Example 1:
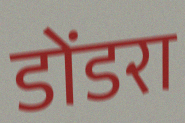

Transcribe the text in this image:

डोंडरा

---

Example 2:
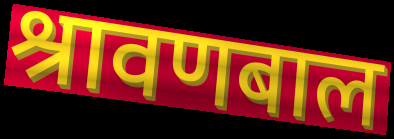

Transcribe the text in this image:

श्रावणबाल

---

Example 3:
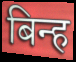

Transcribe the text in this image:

बिन्ह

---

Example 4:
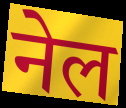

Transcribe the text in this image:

नेल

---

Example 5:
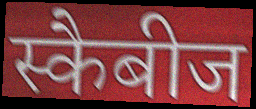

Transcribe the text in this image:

स्कैबीज